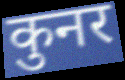
कुनर